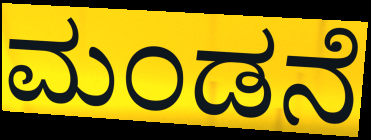
ಮಂಡನೆ